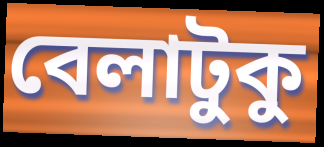
বেলাটুকু